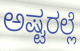
ಅಷ್ಟರಲ್ಲೆ